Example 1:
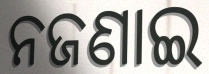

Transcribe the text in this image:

ନଜଣାଇ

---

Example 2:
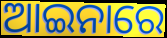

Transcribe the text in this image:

ଆଇନାରେ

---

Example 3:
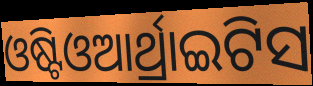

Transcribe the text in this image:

ଓଷ୍ଟିଓଆର୍ଥ୍ରାଇଟିସ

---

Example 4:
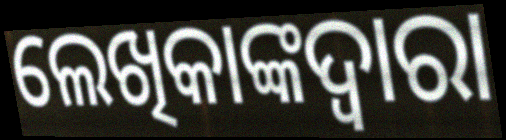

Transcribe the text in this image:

ଲେଖିକାଙ୍କଦ୍ୱାରା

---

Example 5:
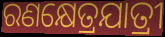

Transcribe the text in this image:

ରଣକ୍ଷେତ୍ରଯାତ୍ରୀ